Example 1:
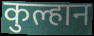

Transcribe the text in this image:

कुल्हान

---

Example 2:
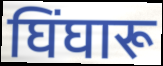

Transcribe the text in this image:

घिंघारू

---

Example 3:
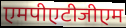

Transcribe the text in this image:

एमपीएटीजीएम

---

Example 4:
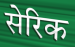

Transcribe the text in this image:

सेरिक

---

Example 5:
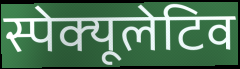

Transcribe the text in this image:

स्पेक्यूलेटिव